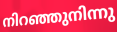
നിറഞ്ഞുനിന്നു